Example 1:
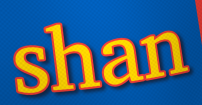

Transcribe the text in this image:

shan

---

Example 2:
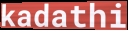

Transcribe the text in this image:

kadathi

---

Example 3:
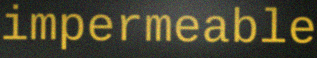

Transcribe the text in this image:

impermeable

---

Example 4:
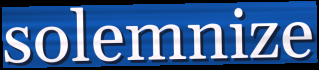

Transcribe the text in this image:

solemnize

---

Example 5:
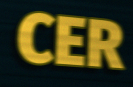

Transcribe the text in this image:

CER